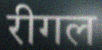
रीगल